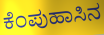
ಕೆಂಪುಹಾಸಿನ